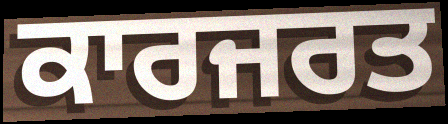
ਕਾਰਜਰਤ